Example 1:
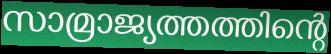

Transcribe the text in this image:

സാമ്രാജ്യത്തത്തിന്റെ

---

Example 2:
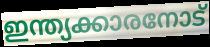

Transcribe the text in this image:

ഇന്ത്യക്കാരനോട്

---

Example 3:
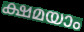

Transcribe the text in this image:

ക്ഷമയാം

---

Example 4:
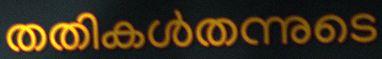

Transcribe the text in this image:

തതികൾതന്നുടെ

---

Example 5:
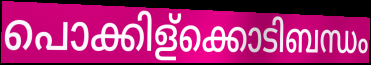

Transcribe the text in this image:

പൊക്കിള്ക്കൊടിബന്ധം